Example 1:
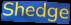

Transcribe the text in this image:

Shedge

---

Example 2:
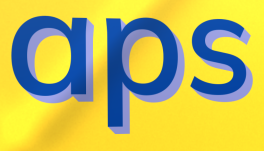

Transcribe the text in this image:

aps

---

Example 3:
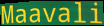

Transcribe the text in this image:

Maavali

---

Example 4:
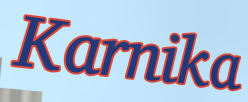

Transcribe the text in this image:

Karnika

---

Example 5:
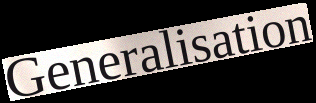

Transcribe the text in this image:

Generalisation